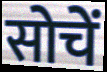
सोचें